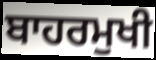
ਬਾਹਰਮੁਖੀ